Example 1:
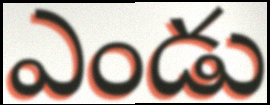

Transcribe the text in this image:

ఎండు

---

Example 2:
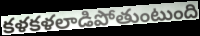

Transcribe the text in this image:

కళకళలాడిపోతుంటుంది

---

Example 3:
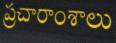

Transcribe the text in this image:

ప్రచారాంశాలు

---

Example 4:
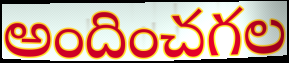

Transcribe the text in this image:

అందించగల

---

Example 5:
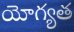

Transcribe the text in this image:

యోగ్యత